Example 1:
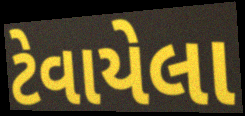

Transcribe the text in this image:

ટેવાયેલા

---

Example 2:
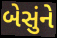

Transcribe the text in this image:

બેસુંને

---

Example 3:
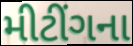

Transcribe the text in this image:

મીટીંગના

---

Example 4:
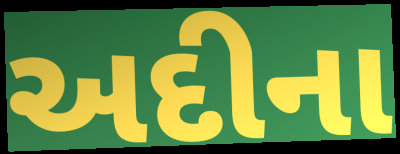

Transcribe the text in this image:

અદીના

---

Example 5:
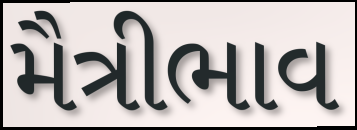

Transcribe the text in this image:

મૈત્રીભાવ